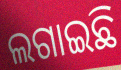
ଲଗାଇଛି